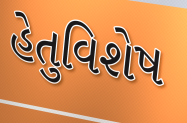
હેતુવિશેષ